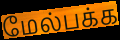
மேல்பக்க